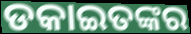
ଡକାଇତଙ୍କର